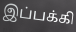
இப்பக்கி